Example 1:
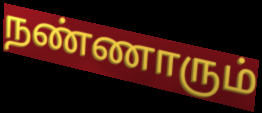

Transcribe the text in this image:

நண்ணாரும்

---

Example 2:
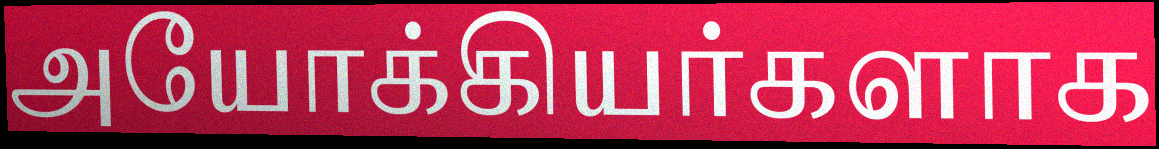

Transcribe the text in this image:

அயோக்கியர்களாக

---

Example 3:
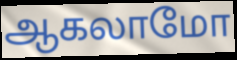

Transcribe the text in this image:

ஆகலாமோ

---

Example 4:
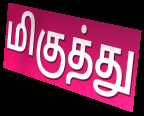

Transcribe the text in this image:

மிகுத்து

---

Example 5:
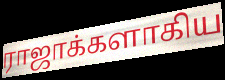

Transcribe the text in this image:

ராஜாக்களாகிய